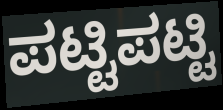
ಪಟ್ಟಿಪಟ್ಟಿ